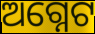
ଅଗ୍ନେଟ